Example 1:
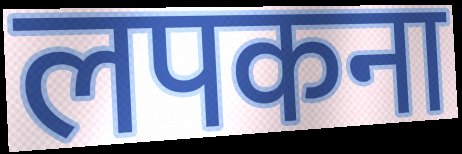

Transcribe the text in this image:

लपकना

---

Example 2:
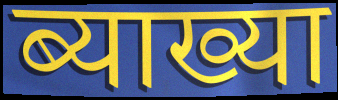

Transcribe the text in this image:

ब्याख्या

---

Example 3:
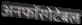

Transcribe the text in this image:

अनफॉरगेटेबल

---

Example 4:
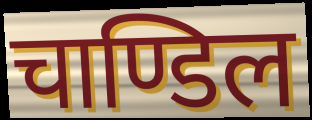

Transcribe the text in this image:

चाण्डिल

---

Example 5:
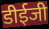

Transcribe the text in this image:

डीईजी